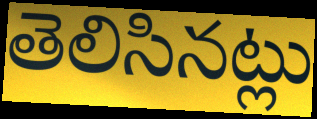
తెలిసినట్లు